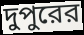
দুপুরের